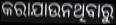
କରାଯାଉନଥିବାରୁ